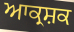
ਆਕ੍ਰਸ਼ਕ